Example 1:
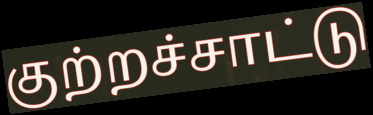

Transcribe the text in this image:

குற்றச்சாட்டு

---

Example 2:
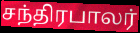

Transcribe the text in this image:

சந்திரபாலர்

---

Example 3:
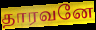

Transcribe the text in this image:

தாரவனே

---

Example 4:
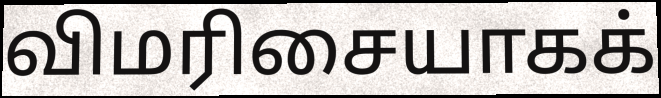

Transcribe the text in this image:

விமரிசையாகக்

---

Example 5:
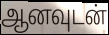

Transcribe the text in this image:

ஆனவுடன்